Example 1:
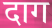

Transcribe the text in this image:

दाग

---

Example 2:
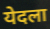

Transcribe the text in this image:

येदला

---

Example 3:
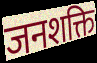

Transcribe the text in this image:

जनशक्ति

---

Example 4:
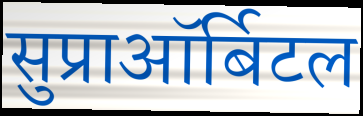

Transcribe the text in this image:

सुप्राऑर्बिटल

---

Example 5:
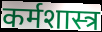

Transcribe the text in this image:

कर्मशास्त्र